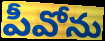
పీవోను